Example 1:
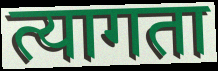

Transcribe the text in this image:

त्यागता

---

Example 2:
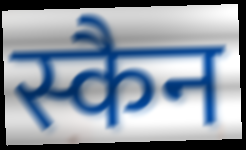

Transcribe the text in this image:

स्‍कैन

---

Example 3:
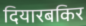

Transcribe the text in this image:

दियारबकिर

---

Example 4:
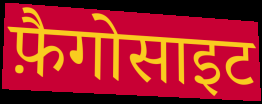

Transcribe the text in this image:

फ़ैगोसाइट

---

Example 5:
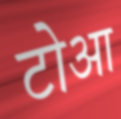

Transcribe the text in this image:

टोआ